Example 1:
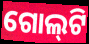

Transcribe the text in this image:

ଗୋଲ୍‍ଟି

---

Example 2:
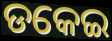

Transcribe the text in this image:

ଡକେଇ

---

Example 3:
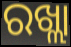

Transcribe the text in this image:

ରଖ୍ଲା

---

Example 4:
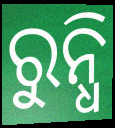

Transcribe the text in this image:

ରୁନ୍ଧି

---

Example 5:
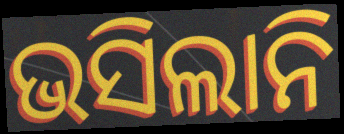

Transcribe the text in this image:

ଭସିଲାନି